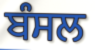
ਬੰਸਲ